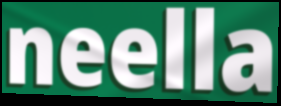
neella